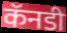
कॅनडी